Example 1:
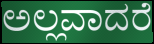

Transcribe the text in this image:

ಅಲ್ಲವಾದರೆ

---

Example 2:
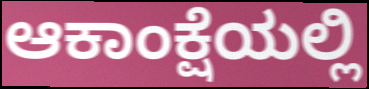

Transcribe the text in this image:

ಆಕಾಂಕ್ಷೆಯಲ್ಲಿ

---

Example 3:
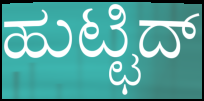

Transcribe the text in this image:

ಹುಟ್ಟಿದ್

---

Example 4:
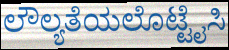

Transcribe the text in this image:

ಲೌಲ್ಯತೆಯಲೊಟ್ಟೈಸಿ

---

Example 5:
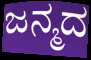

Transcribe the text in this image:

ಜನ್ಮದ